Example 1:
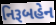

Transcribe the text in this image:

નિરૂબહેન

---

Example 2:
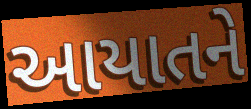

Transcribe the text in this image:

આયાતને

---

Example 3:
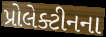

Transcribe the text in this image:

પ્રોલેક્ટીનના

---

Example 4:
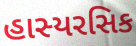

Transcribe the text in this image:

હાસ્યરસિક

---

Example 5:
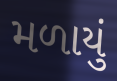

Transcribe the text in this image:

મળાયું